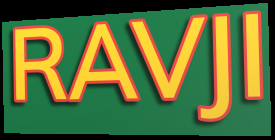
RAVJI